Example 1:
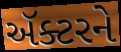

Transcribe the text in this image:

ઍક્ટરને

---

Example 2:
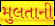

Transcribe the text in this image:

મુલતાની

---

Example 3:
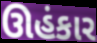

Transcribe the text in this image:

ઊહંકાર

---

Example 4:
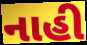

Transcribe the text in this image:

નાહી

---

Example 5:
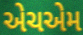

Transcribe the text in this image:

એચએમ